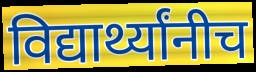
विद्यार्थ्यांनीच